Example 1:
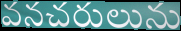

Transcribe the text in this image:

వనచరులును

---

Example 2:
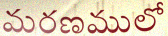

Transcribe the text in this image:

మరణములో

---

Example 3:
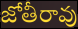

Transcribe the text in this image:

జోతీరావు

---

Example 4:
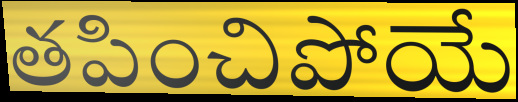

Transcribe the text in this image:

తపించిపోయే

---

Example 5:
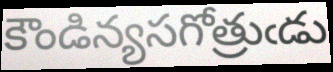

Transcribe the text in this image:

కౌండిన్యసగోత్రుఁడు